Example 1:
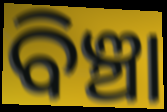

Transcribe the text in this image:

ବିଞ୍ଚା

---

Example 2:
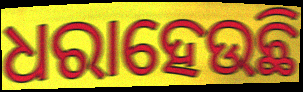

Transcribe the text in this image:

ଧରାହେଉଛି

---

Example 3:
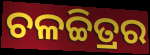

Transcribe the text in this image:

ଚଳଚ୍ଚିତ୍ରର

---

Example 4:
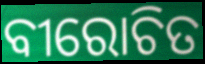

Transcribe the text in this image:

ବୀରୋଚିତ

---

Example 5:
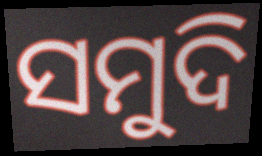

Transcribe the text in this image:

ସମୁଦି